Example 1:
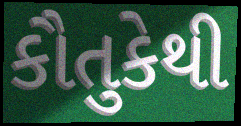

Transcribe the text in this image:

કૌતુકેથી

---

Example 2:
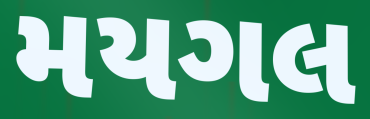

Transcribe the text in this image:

મયગલ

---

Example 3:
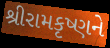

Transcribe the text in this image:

શ્રીરામકૃષ્ણને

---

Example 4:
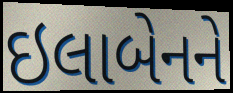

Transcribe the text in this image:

ઇલાબેનને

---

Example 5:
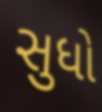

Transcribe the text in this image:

સુધો